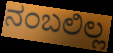
ನಂಬಲಿಲ್ಲ